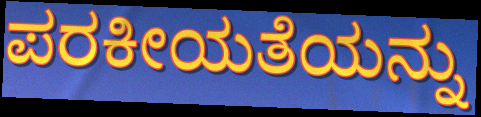
ಪರಕೀಯತೆಯನ್ನು